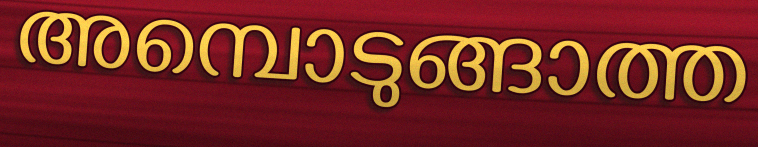
അമ്പൊടുങ്ങാത്ത